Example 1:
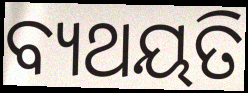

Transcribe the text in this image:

ବ୍ୟଥୟତି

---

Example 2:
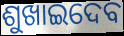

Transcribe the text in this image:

ଶୁଖାଇଦେବ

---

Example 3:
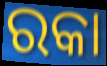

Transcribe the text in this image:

ରକା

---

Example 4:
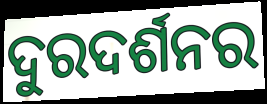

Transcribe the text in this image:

ଦୁରଦର୍ଶନର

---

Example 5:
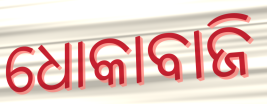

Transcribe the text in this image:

ଧୋକାବାଜି